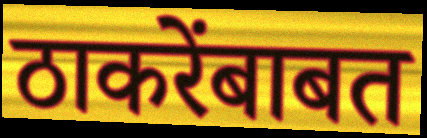
ठाकरेंबाबत